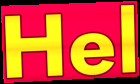
Hel